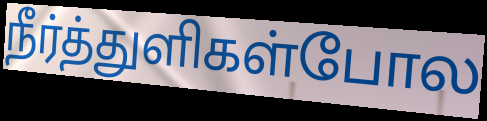
நீர்த்துளிகள்போல